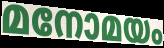
മനോമയം